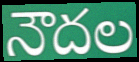
నౌదల